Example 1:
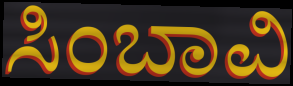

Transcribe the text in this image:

ಸಿಂಬಾವಿ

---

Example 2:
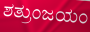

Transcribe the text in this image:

ಶತ್ರುಂಜಯಂ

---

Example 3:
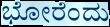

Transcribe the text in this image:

ಭೋರೆಂದು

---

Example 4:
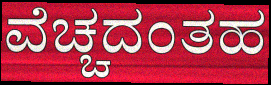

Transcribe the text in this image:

ವೆಚ್ಚದಂತಹ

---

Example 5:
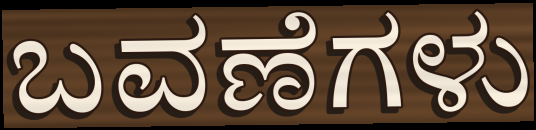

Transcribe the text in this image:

ಬವಣೆಗಳು